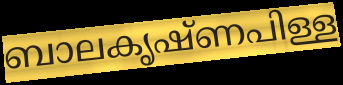
ബാലകൃഷ്ണപിള്ള